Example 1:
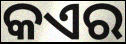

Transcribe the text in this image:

କଏର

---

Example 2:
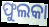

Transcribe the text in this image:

ଫୁଲକା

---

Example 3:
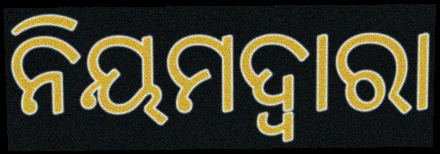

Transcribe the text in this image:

ନିୟମଦ୍ଵାରା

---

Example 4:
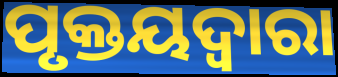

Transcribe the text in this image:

ପୃକ୍ତୟଦ୍ଵାରା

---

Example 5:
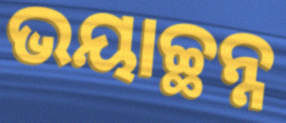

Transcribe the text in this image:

ଭୟାଚ୍ଛନ୍ନ